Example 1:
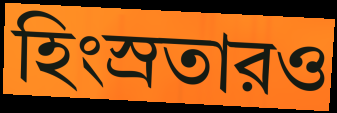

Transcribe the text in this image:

হিংস্রতারও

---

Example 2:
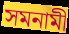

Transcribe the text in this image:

সমনামী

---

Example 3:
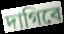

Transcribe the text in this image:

দাগিবে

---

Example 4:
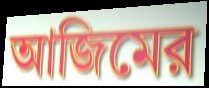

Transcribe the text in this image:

আজিমের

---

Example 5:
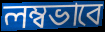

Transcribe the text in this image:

লম্বভাবে